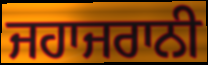
ਜਹਾਜਰਾਨੀ